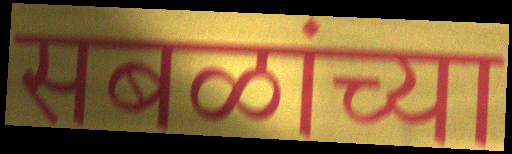
सबळांच्या